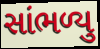
સાંભળ્યુ